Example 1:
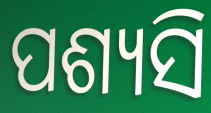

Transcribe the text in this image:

ପଶ୍ୟସି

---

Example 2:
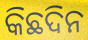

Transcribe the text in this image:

କିଛଦିନ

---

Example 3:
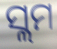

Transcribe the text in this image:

ସ୍ଲମ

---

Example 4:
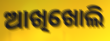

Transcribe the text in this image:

ଆଖିଖୋଲି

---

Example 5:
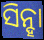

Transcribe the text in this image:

ସିନ୍ହା